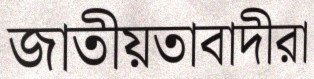
জাতীয়তাবাদীরা